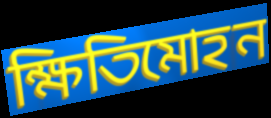
ক্ষিতিমোহন